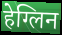
हेग्लिन